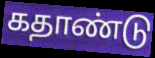
கதாண்டு